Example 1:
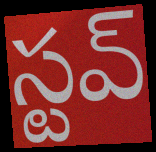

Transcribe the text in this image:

స్టవ్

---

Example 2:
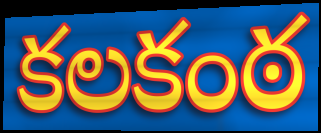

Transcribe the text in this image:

కలకంఠ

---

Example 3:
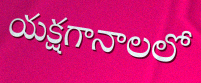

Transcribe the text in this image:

యక్షగానాలలో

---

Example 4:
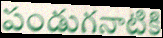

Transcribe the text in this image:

పండుగనాటికి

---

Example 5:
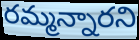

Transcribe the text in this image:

రమ్మన్నారని